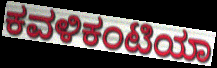
ಕವಳಿಕಂಟಿಯಾ